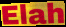
Elah